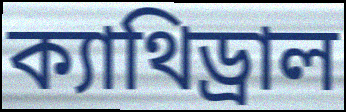
ক্যাথিড্রাল